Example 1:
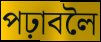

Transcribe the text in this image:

পঢ়াবলৈ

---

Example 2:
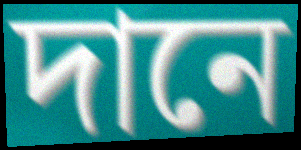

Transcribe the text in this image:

দানে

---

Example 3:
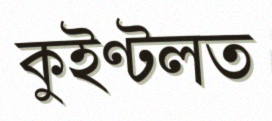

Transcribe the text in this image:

কুইণ্টলত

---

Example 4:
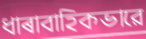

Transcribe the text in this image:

ধাৰাবাহিকভাৱে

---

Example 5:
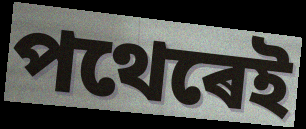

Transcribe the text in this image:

পথেৰেই